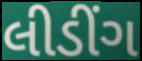
લીડીંગ